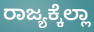
ರಾಜ್ಯಕ್ಕೆಲ್ಲಾ